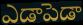
ఎడాపెడా